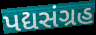
પદ્યસંગ્રહ